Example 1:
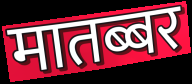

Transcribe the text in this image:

मातब्बर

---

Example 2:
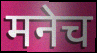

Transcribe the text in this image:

मनेच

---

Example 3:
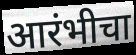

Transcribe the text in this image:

आरंभीचा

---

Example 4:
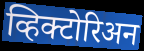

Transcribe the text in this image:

व्हिक्टोरिअन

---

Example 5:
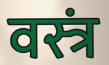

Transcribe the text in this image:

वस्त्रं